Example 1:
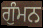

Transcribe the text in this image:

ਗੁੰਮਨ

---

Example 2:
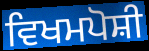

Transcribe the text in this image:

ਵਿਖਮਪੋਸ਼ੀ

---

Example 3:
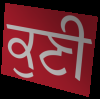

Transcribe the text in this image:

ਕੁਣੀ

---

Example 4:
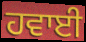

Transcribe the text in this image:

ਹਵਾਈ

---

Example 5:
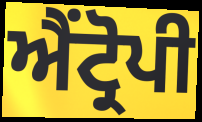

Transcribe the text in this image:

ਐਂਟ੍ਰੋਪੀ